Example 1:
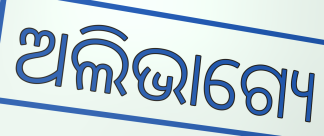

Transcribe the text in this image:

ଅଲିଭାଗ୍ୟେ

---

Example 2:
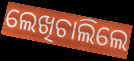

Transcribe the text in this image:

ଲେଖିଚାଲିଲେ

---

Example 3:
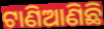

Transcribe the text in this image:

ଟାଣିଆଣିଛି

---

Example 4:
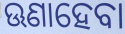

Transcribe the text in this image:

ଊଣାହେବା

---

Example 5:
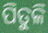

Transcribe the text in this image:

ପିତୁଳି